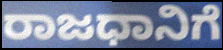
ರಾಜಧಾನಿಗೆ